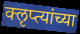
क्लृप्त्यांच्या